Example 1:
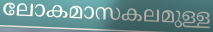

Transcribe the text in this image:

ലോകമാസകലമുള്ള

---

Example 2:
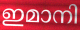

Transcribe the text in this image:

ഇമാനി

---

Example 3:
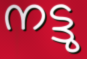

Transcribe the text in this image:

നട്ടു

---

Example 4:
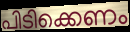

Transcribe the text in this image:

പിടിക്കെണം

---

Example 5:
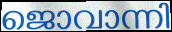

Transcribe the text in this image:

ജൊവാന്നി